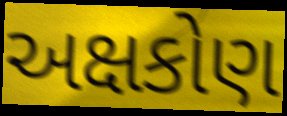
અક્ષકોણ